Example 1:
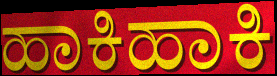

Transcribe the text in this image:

ಹಾಕಿಹಾಕಿ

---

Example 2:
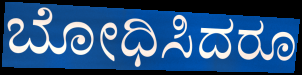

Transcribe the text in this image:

ಬೋಧಿಸಿದರೂ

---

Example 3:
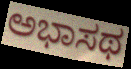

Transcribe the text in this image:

ಅಭಾಸಥ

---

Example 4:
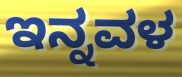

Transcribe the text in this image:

ಇನ್ನವಳ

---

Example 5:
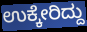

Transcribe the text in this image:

ಉಕ್ಕೇರಿದ್ದು